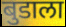
बुडाला